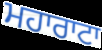
ਮਹਾਰਾਟਾ